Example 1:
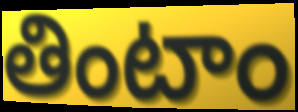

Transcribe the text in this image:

తింటాం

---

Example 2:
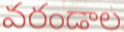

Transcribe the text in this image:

వరండాల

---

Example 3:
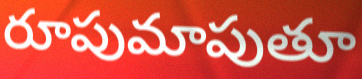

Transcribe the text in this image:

రూపుమాపుతూ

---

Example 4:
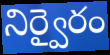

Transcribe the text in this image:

నిర్వైరం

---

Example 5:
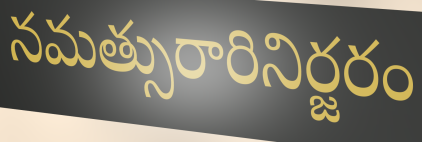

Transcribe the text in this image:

నమత్సురారినిర్జరం